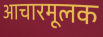
आचारमूलक